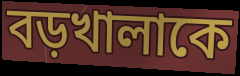
বড়খালাকে